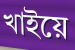
খাইয়ে